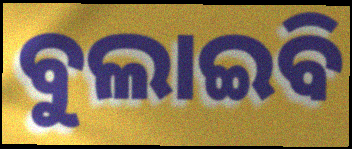
ବୁଲାଇବି